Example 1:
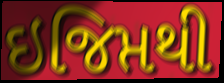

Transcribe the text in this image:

ઇજિપ્તથી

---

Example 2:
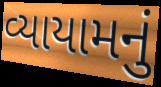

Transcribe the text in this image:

વ્યાયામનું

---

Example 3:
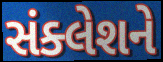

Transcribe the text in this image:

સંક્લેશને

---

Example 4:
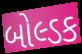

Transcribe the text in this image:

બોલ્ડક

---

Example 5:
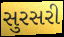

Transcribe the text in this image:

સુરસરી